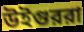
উইগুররা